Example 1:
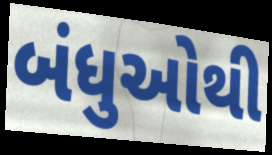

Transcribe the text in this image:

બંધુઓથી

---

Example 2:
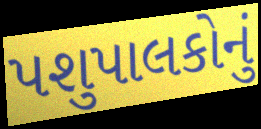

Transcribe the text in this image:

પશુપાલકોનું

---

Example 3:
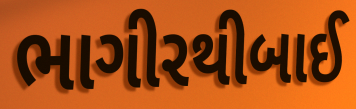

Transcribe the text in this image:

ભાગીરથીબાઈ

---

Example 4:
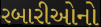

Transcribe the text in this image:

રબારીઓનો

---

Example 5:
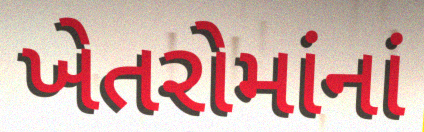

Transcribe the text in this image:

ખેતરોમાંનાં